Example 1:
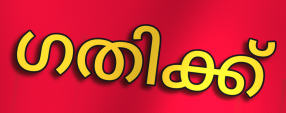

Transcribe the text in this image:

ഗതിക്ക്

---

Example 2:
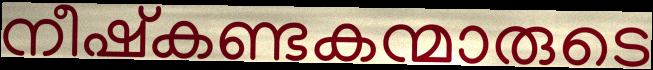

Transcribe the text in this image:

നീഷ്കണ്ടകന്മാരുടെ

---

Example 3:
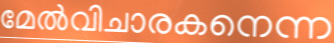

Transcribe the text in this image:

മേൽവിചാരകനെന്ന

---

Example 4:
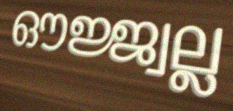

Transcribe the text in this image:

ഔജ്ജ്വല്ല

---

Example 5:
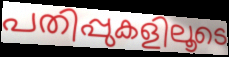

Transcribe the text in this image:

പതിപ്പുകളിലൂടെ